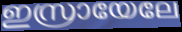
ഇസ്രായേലേ